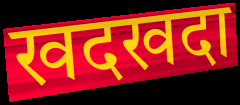
खदखदा